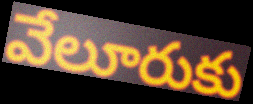
వేలూరుకు